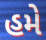
હમે